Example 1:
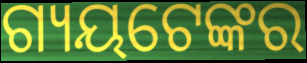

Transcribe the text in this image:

ଗ୍ୟୟଟେଙ୍କର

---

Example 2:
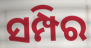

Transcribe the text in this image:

ସମ୍ପିର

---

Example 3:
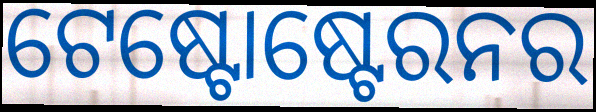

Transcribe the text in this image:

ଟେଷ୍ଟୋଷ୍ଟେରନର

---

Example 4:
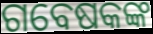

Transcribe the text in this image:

ଗବେଷକଙ୍କ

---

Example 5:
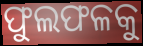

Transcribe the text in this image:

ଫୁଲଫଳକୁ